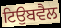
ਟਿਉਬਵੈਲ